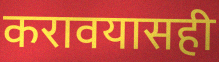
करावयासही